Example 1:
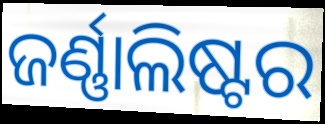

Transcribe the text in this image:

ଜର୍ଣ୍ଣାଲିଷ୍ଟର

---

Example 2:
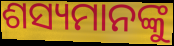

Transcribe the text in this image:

ଶସ୍ୟମାନଙ୍କୁ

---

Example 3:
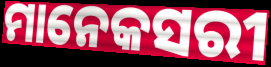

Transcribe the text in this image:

ମାନେକସରୀ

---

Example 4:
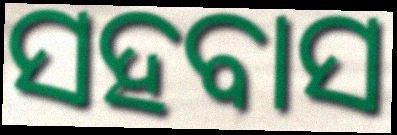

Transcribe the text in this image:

ସହବାସ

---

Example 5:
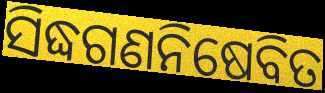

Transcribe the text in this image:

ସିଦ୍ଧଗଣନିଷେବିତ